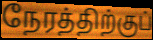
நேரத்திற்குப்